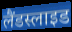
लैंडस्लाइड